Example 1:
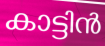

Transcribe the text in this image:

കാട്ടിൻ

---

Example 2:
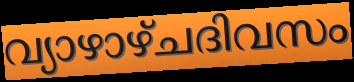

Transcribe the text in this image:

വ്യാഴാഴ്ചദിവസം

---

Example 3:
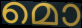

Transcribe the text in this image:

മൊ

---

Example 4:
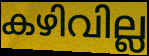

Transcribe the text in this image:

കഴിവില്ല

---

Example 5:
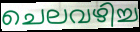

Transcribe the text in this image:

ചെലവഴിച്ച